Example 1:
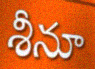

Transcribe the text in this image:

శీనూ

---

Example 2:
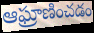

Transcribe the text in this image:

ఆఘ్రాణించడం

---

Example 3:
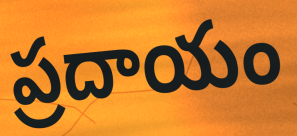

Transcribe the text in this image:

ప్రదాయం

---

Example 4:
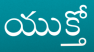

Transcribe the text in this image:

యుక్తో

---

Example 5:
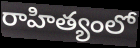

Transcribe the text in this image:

రాహిత్యంలో